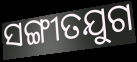
ସଙ୍ଗୀତଯୁଗ